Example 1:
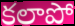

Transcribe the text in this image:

కలాపో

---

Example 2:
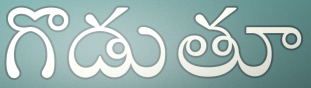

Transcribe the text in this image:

గొడుతూ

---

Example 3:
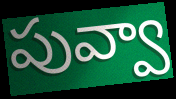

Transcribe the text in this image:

పువ్వా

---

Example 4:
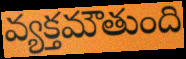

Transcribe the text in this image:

వ్యక్తమౌతుంది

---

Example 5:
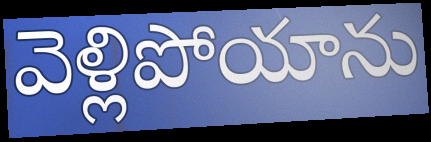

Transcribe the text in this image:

వెళ్లిపోయాను